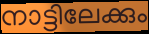
നാട്ടിലേക്കും